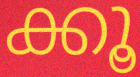
ക്കൂ